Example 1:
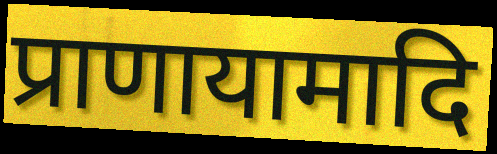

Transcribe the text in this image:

प्राणायामादि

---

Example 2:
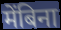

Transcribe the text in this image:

मेंबिना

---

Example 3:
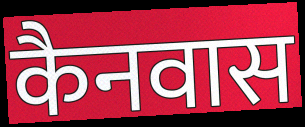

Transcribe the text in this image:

कैनवास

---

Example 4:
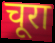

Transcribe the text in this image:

चूरा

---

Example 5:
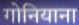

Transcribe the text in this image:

गोनियाना